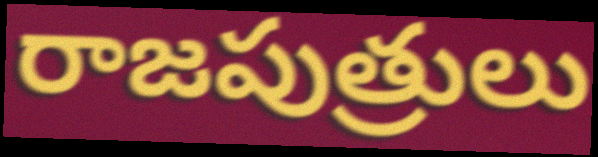
రాజపుత్రులు